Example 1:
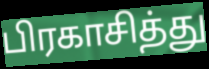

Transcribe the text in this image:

பிரகாசித்து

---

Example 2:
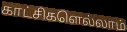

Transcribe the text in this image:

காட்சிகளெல்லாம்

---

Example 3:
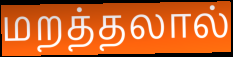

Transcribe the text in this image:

மறத்தலால்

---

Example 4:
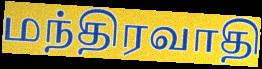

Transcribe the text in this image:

மந்திரவாதி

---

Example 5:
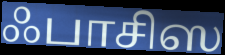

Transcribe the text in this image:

ஃபாசிஸ